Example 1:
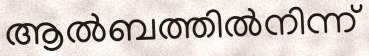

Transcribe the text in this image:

ആൽബത്തിൽനിന്ന്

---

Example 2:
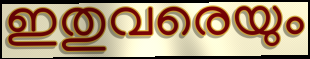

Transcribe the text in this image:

ഇതുവരെയും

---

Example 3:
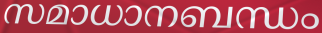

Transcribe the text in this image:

സമാധാനബന്ധം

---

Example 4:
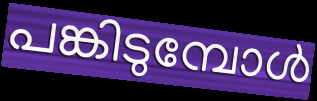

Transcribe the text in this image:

പങ്കിടുമ്പോൾ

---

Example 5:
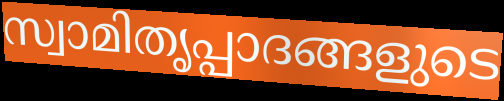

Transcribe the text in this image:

സ്വാമിതൃപ്പാദങ്ങളുടെ